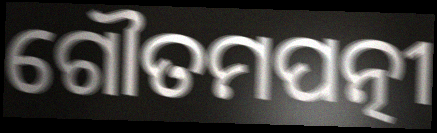
ଗୌତମପତ୍ନୀ